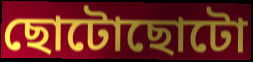
ছোটোছোটো